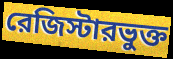
রেজিস্টারভুক্ত